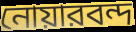
নোয়ারবন্দ